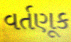
વર્તણૂક